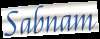
Sabnam